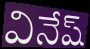
వినేష్